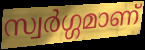
സ്വർഗ്ഗമാണ്